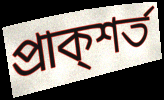
প্রাক্‌শর্ত